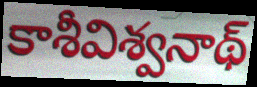
కాశీవిశ్వనాథ్